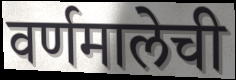
वर्णमालेची